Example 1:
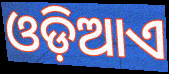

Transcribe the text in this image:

ଓଡ଼ିଆଏ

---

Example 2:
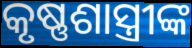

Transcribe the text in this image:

କୃଷ୍ଣଶାସ୍ତ୍ରୀଙ୍କ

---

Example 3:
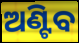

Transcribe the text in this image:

ଅଣ୍ଟିବ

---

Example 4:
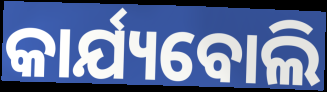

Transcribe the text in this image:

କାର୍ଯ୍ୟବୋଲି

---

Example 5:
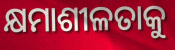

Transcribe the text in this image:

କ୍ଷମାଶୀଳତାକୁ